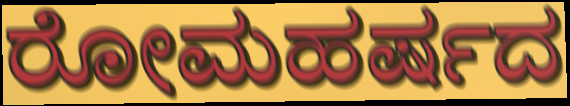
ರೋಮಹರ್ಷದ